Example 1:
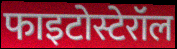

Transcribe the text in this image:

फाइटोस्टेरॉल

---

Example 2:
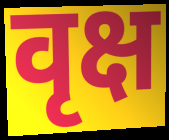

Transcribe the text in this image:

वृक्ष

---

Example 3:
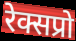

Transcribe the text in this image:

रेक्सप्रो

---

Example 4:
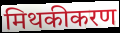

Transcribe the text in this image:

मिथकीकरण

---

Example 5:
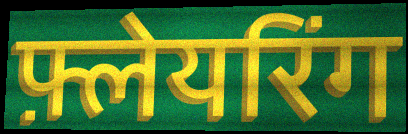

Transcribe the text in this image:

फ़्लेयरिंग